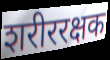
शरीररक्षक